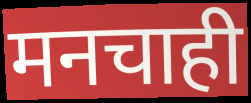
मनचाही